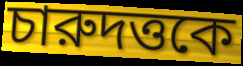
চারুদত্তকে